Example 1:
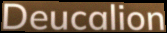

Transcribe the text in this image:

Deucalion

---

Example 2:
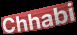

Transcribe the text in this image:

Chhabi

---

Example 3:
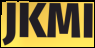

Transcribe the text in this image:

JKMI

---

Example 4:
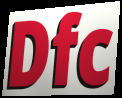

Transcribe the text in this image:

Dfc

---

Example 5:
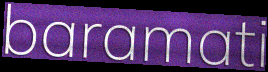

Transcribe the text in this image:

baramati